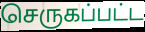
செருகப்பட்ட